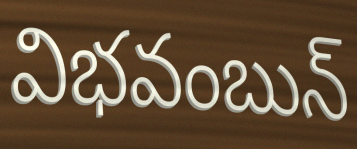
విభవంబున్